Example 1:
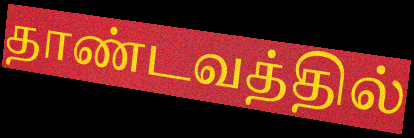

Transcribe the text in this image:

தாண்டவத்தில்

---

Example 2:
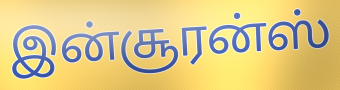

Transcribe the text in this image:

இன்சூரன்ஸ்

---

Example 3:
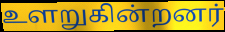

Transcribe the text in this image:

உளறுகின்றனர்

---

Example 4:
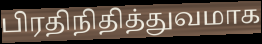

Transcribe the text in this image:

பிரதிநிதித்துவமாக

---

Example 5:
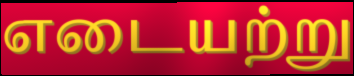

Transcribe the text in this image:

எடையற்று